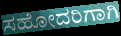
ಸಹೋದರಿಗಾಗಿ